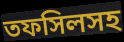
তফসিলসহ